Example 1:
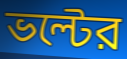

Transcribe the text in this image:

ভল্টের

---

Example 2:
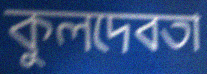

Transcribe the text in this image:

কুলদেবতা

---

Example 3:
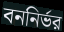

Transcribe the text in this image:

বননির্ভর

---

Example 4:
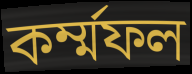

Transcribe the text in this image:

কর্ম্মফল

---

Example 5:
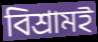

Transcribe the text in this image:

বিশ্রামই